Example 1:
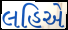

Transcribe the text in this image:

લહિએ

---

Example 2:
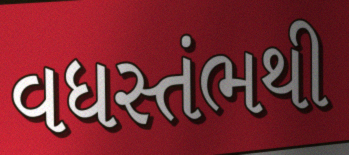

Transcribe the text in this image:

વધસ્તંભથી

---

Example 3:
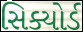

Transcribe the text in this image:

સિક્યોર્ડ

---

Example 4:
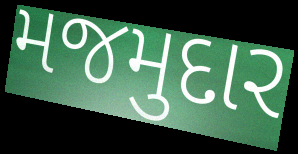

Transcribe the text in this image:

મજમુદાર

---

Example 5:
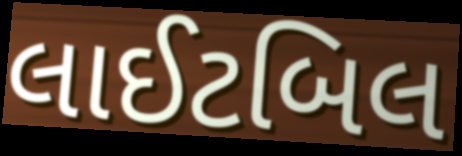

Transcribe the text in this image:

લાઈટબિલ